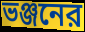
ভঞ্জনের